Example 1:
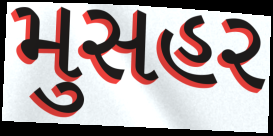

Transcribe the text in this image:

મુસહર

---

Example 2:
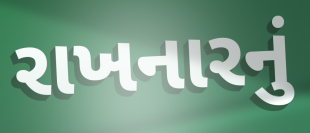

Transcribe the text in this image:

રાખનારનું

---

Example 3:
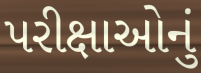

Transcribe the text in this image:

પરીક્ષાઓનું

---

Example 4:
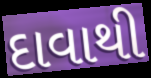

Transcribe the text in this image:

દાવાથી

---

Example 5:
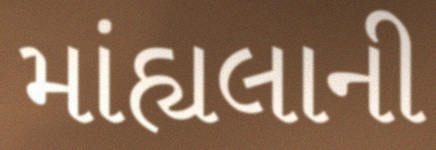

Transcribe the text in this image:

માંહ્યલાની